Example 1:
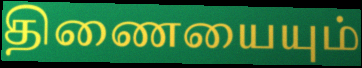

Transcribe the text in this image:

திணையையும்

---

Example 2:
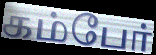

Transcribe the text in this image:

கம்பேர்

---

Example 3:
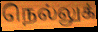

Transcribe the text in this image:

நெல்லுக்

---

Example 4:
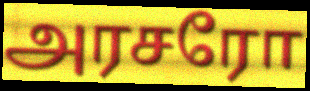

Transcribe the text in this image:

அரசரோ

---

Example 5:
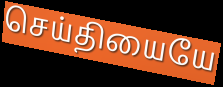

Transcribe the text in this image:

செய்தியையே